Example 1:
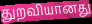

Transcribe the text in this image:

துறவியானது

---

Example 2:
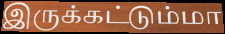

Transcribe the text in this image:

இருக்கட்டும்மா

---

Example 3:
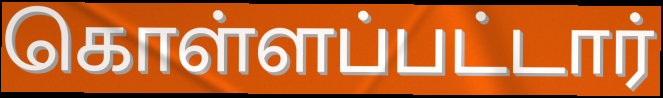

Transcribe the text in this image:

கொள்ளப்பட்டார்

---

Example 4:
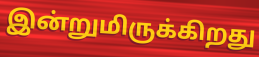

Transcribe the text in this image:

இன்றுமிருக்கிறது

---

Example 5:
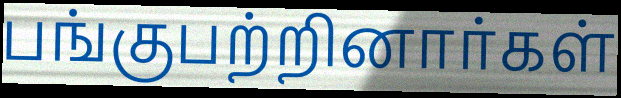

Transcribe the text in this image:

பங்குபற்றினார்கள்